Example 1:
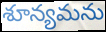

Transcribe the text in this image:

శూన్యమను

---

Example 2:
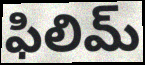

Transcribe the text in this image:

ఫిలిమ్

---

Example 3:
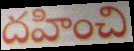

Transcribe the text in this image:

దహించి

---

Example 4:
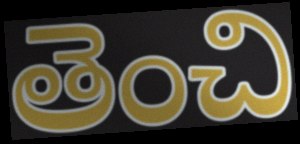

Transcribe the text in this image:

తెంచి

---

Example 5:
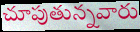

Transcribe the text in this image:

చూపుతున్నవారు